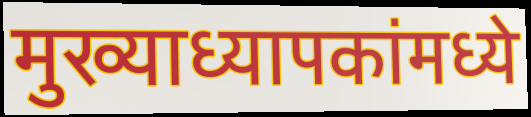
मुख्याध्यापकांमध्ये